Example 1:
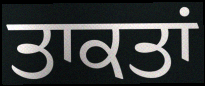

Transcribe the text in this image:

ਤਾਕਤਾਂ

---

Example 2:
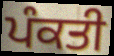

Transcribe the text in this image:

ਪੰਕਤੀ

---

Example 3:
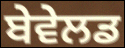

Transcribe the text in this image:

ਬੇਵੇਲਡ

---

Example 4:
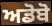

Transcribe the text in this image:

ਅਡੋਬੋ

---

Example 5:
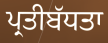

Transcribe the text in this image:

ਪ੍ਰਤੀਬੱਧਤਾ